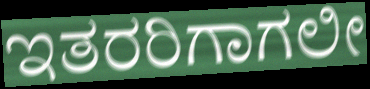
ಇತರರಿಗಾಗಲೀ